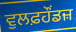
ਵੁਲਫ਼ਹੌਂਡਜ਼